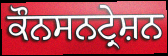
ਕੌਨਸਨਟ੍ਰੇਸ਼ਨ